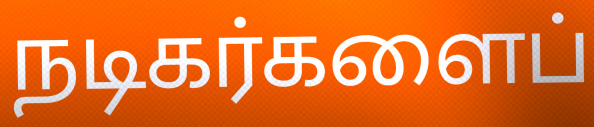
நடிகர்களைப்